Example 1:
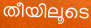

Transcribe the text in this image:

തീയിലൂടെ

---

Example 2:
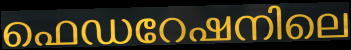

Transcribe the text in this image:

ഫെഡറേഷനിലെ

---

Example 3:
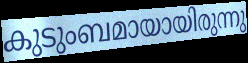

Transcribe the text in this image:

കുടുംബമായായിരുന്നു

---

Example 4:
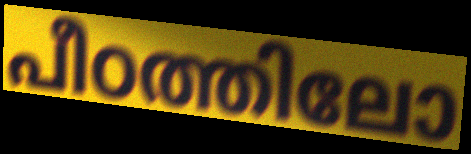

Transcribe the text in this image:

പീഠത്തിലോ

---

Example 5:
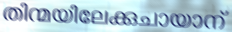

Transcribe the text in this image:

തിന്മയിലേക്കുചായാന്